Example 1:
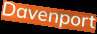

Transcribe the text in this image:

Davenport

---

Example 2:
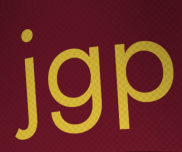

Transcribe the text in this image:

jgp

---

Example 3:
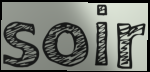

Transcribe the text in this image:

soir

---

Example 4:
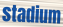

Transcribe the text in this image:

stadium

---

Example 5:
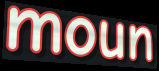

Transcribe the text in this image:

moun